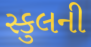
સ્કુલની